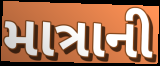
માત્રાની